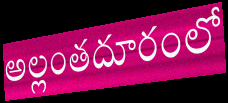
అల్లంతదూరంలో